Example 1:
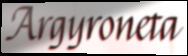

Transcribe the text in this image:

Argyroneta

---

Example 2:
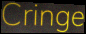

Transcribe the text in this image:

Cringe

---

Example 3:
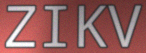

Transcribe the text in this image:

ZIKV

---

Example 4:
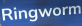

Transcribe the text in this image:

Ringworm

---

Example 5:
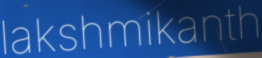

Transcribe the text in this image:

lakshmikanth